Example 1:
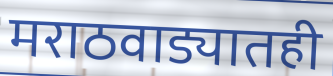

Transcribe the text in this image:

मराठवाड्यातही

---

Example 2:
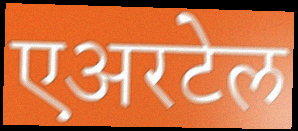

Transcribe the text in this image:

एअरटेल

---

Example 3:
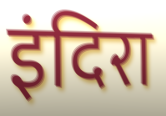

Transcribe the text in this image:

इंदिरा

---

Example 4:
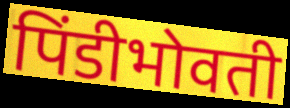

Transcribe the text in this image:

पिंडीभोवती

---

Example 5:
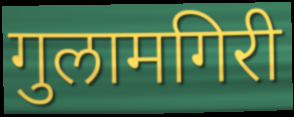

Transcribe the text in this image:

गुलामगिरी